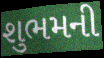
શુભમની